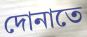
দোনাতে